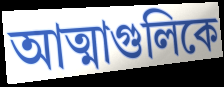
আত্মাগুলিকে